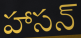
హాసన్